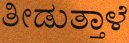
ತೀಡುತ್ತಾಳೆ